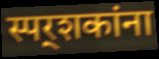
स्पर्शकांना